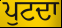
ਪੁਟਦਾ